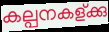
കല്പനകള്ക്കു